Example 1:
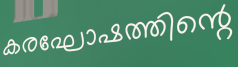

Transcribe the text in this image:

കരഘോഷത്തിന്റെ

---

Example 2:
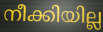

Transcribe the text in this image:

നീക്കിയില്ല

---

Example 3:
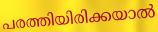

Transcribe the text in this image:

പരത്തിയിരിക്കയാൽ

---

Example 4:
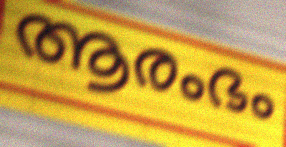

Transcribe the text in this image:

ആരംഭം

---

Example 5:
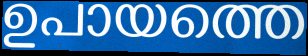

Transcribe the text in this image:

ഉപായത്തെ